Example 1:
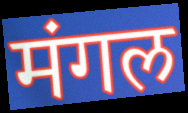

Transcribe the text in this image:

मंगल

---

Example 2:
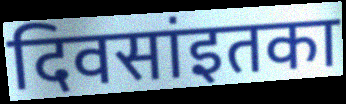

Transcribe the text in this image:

दिवसांइतका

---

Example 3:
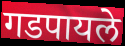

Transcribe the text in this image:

गडपायले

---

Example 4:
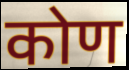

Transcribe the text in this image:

कोण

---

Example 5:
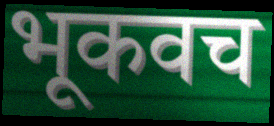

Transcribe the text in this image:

भूकवच